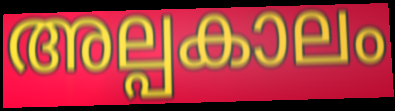
അല്പകാലം